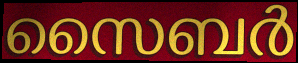
സൈബർ